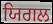
ਯਿਗਲ